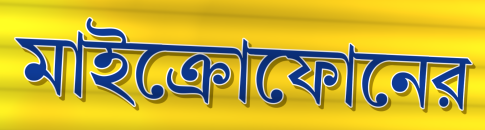
মাইক্রোফোনের